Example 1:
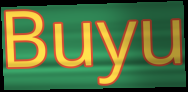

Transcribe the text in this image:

Buyu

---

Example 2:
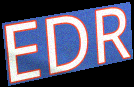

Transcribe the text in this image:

EDR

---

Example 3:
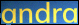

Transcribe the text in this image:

andra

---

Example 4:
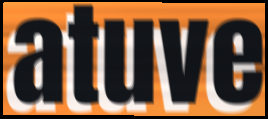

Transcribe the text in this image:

atuve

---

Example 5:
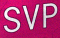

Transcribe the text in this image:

SVP